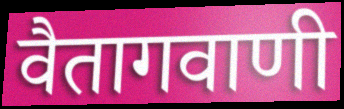
वैतागवाणी